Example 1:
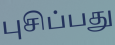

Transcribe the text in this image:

புசிப்பது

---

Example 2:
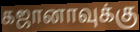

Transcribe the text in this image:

கஜானாவுக்கு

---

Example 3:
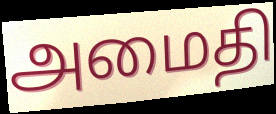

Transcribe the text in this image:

அமைதி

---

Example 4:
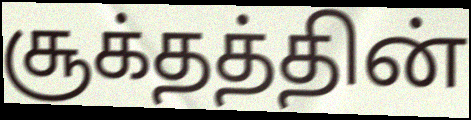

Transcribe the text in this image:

சூக்தத்தின்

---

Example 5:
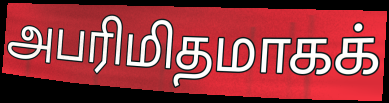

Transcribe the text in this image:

அபரிமிதமாகக்